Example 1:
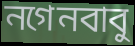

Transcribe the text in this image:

নগেনবাবু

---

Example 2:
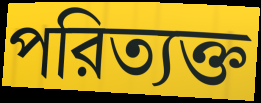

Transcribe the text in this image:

পরিত্যক্ত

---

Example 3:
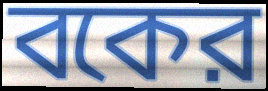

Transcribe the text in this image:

বকের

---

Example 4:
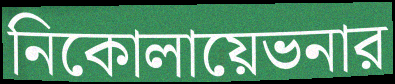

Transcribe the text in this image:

নিকোলায়েভনার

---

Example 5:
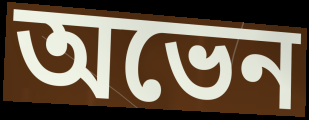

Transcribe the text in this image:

অভেন